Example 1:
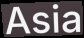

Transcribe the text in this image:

Asia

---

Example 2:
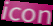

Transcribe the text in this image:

icon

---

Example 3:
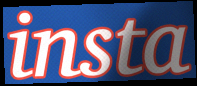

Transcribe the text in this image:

insta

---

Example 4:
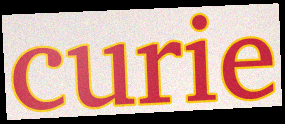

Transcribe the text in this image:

curie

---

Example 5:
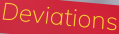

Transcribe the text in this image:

Deviations